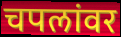
चपलांवर